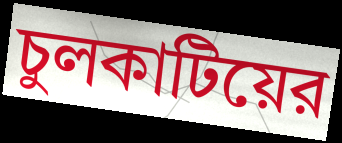
চুলকাটিয়ের